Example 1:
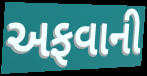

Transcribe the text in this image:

અફવાની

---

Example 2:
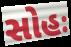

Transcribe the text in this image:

સોહઃ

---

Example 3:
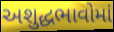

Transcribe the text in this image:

અશુદ્ધભાવોમાં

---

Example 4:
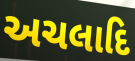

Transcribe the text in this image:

અચલાદિ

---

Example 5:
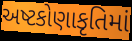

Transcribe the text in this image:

અષ્ટકોણાકૃતિમાં